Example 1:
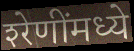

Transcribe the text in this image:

श्रेणींमध्ये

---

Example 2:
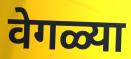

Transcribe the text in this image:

वेगळ्या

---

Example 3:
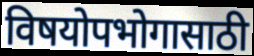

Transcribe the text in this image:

विषयोपभोगासाठी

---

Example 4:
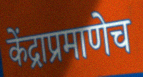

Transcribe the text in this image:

केंद्राप्रमाणेच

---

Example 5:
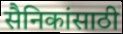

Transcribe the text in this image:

सैनिकांसाठी